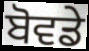
ਬੋਵਡੇ